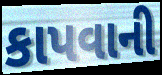
કાપવાની